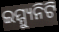
ଇମ୍ମ୍ୟୁନିଟି